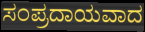
ಸಂಪ್ರದಾಯವಾದ